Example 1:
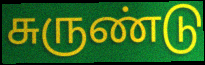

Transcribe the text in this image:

சுருண்டு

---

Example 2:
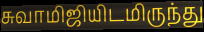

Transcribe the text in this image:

சுவாமிஜியிடமிருந்து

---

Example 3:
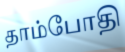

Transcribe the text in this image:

தாம்போதி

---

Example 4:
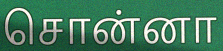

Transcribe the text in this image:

சொன்னா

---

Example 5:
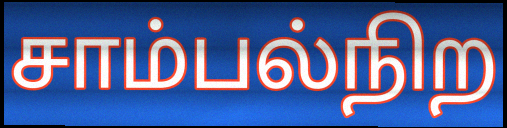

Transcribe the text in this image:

சாம்பல்நிற